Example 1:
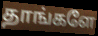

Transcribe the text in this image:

தாங்களே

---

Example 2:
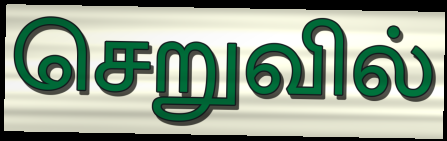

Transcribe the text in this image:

செறுவில்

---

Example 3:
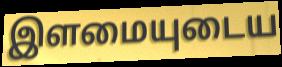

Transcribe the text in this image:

இளமையுடைய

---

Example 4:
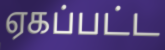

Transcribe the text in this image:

ஏகப்பட்ட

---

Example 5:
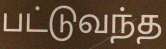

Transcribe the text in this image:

பட்டுவந்த